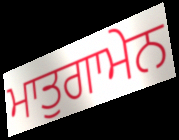
ਮਾਤੁਗਾਮੇਨ